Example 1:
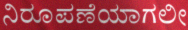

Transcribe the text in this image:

ನಿರೂಪಣೆಯಾಗಲೀ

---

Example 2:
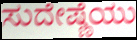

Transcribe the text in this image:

ಸುದೇಷ್ಣೆಯು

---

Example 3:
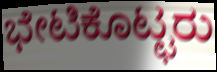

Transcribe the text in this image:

ಭೇಟಿಕೊಟ್ಟರು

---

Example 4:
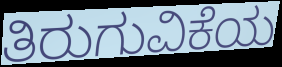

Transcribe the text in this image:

ತಿರುಗುವಿಕೆಯ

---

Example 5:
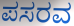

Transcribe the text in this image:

ಪಸರವ